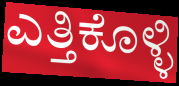
ಎತ್ತಿಕೊಳ್ಳಿ